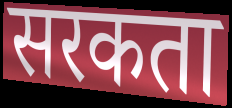
सरकता